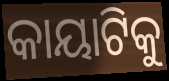
କାୟାଟିକୁ